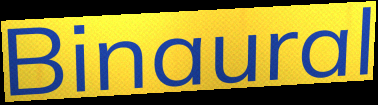
Binaural